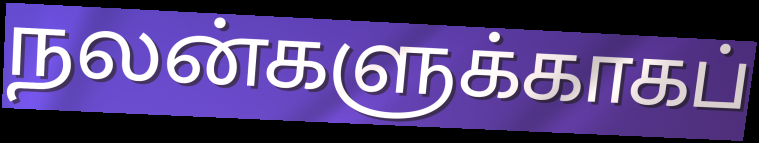
நலன்களுக்காகப்